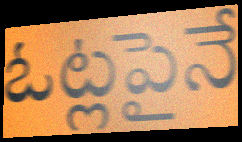
ఓట్లపైనే